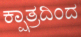
ಕ್ಷಾತ್ರದಿಂದ